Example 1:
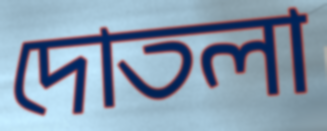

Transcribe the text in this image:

দোতলা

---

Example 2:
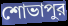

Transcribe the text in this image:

শোভাপুর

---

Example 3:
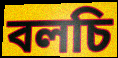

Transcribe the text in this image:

বলচি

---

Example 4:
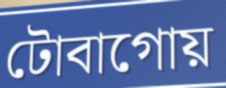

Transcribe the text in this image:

টোবাগোয়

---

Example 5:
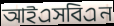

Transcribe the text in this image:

আইএসবিএন